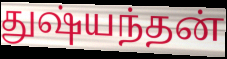
துஷ்யந்தன்